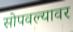
सोपवल्यावर